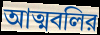
আত্মবলির